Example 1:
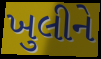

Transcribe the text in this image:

ખુલીને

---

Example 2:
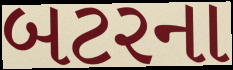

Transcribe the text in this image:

બટરના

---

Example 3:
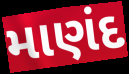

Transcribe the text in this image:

માણંદ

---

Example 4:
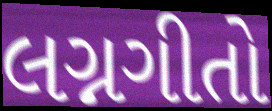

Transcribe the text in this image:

લગ્નગીતો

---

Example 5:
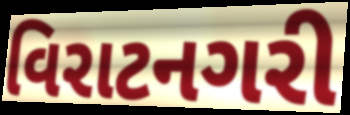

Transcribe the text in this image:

વિરાટનગરી